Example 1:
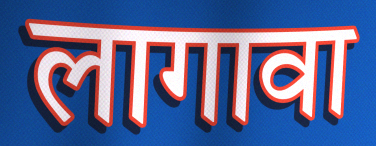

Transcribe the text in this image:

लागावा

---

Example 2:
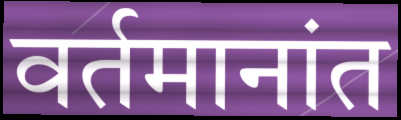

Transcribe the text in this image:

वर्तमानांत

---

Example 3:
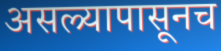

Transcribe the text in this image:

असल्यापासूनच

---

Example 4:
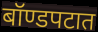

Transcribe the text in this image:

बॉण्डपटात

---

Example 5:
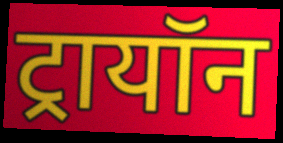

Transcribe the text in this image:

ट्रायॉन